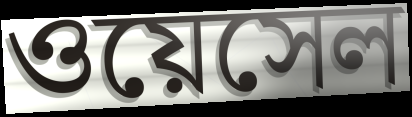
ওয়েসেল